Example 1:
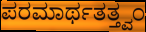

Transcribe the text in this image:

ಪರಮಾರ್ಥತತ್ತ್ವಂ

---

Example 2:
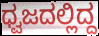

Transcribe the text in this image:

ಧ್ವಜದಲ್ಲಿದ್ದ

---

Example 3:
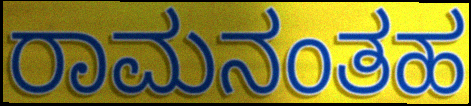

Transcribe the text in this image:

ರಾಮನಂತಹ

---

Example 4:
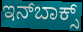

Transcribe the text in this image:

ಇನ್‍ಬಾಕ್ಸ್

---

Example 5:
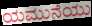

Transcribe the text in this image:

ಯಮುನೆಯು